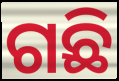
ଗଛି